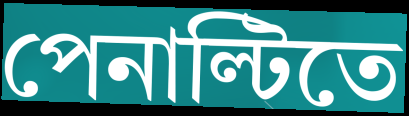
পেনাল্টিতে